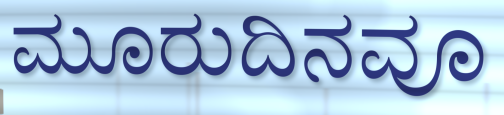
ಮೂರುದಿನವೂ